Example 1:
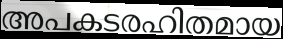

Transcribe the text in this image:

അപകടരഹിതമായ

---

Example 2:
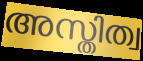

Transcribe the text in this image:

അസ്തിത്വ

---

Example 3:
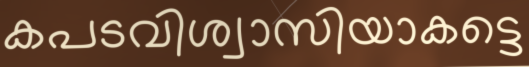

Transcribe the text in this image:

കപടവിശ്വാസിയാകട്ടെ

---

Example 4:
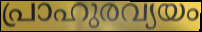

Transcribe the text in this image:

പ്രാഹുരവ്യയം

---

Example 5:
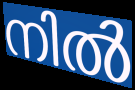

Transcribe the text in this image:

നിൽ